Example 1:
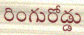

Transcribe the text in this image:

రింగురోడ్డు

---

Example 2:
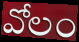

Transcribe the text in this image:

వోలం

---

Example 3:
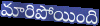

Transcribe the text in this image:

మారిపోయింది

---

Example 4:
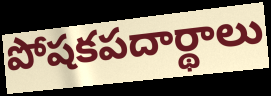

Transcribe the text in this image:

పోషకపదార్థాలు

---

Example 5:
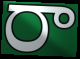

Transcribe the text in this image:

రా